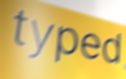
typed